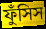
ফুঁসিস